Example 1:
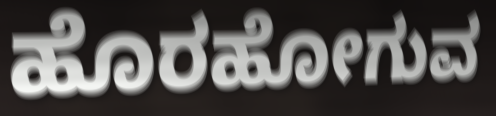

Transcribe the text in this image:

ಹೊರಹೋಗುವ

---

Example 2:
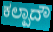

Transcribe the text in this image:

ಕಲ್ಪಾದೌ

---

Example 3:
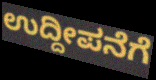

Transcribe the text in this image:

ಉದ್ದೀಪನೆಗೆ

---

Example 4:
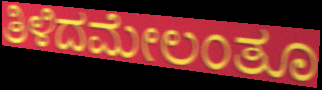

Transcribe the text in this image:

ತಿಳಿದಮೇಲಂತೂ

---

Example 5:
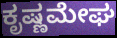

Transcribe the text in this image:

ಕೃಷ್ಣಮೇಘ